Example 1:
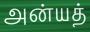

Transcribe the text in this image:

அன்யத்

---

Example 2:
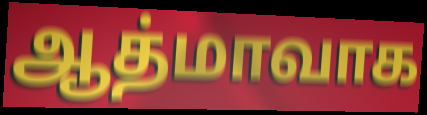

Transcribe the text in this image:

ஆத்மாவாக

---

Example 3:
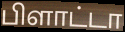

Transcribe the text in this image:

பிளாட்டா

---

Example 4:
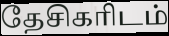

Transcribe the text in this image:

தேசிகரிடம்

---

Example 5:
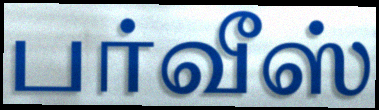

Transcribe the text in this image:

பர்வீஸ்